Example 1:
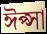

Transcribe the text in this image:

ঈপ্সা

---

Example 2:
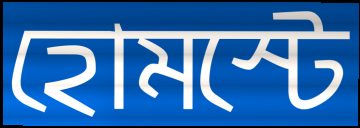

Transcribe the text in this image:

হোমস্টে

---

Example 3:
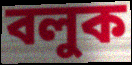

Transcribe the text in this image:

বলুক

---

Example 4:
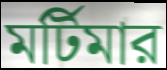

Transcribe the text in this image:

মর্টিমার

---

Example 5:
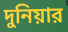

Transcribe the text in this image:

দুনিয়ার